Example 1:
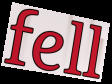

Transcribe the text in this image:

fell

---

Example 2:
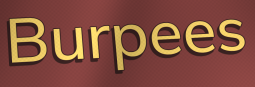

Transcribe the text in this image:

Burpees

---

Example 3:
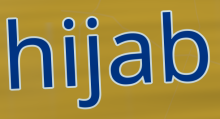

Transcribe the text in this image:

hijab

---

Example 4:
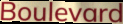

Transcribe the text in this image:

Boulevard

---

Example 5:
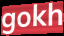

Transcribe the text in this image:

gokh